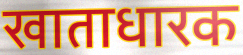
खाताधारक